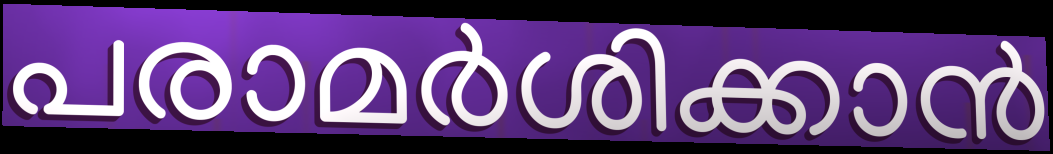
പരാമർശിക്കാൻ